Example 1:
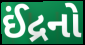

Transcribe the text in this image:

ઈંદ્રનો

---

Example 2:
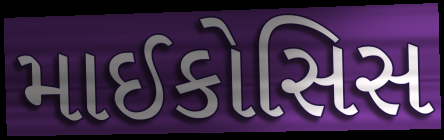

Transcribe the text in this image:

માઈકોસિસ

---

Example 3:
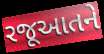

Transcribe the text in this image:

રજૂઆતને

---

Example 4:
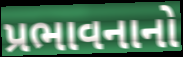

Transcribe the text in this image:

પ્રભાવનાનો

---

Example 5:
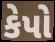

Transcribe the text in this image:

કેપો